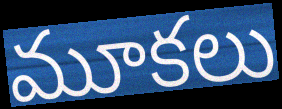
మూకలు